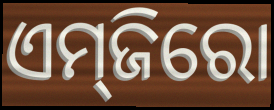
ଏମ୍‌ଜିରୋ